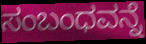
ಸಂಬಂಧವನ್ನೆ